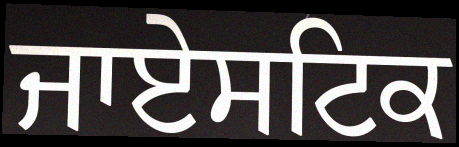
ਜਾਏਸਟਿਕ